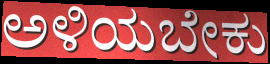
ಅಳಿಯಬೇಕು